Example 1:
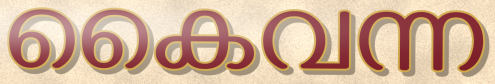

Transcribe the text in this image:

കൈവന്ന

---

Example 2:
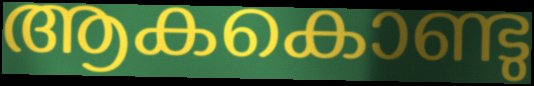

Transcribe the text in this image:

ആകകൊണ്ടു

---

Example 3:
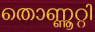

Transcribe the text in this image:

തൊണ്ണൂറ്റി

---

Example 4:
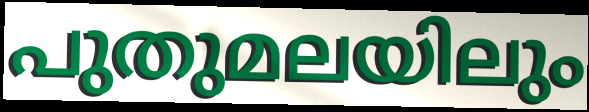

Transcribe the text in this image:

പുതുമലയിലും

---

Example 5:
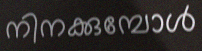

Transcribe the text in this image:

നിനക്കുമ്പോൾ